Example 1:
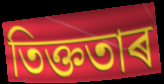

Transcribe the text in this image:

তিক্ততাৰ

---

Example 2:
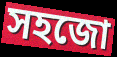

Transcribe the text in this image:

সহজো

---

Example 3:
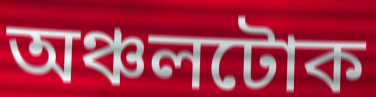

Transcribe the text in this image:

অঞ্চলটোক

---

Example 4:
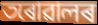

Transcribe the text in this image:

তৰোৱালৰ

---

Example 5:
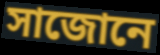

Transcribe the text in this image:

সাজোনে